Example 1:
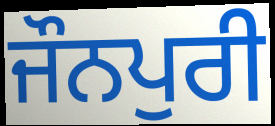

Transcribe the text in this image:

ਜੌਨਪੁਰੀ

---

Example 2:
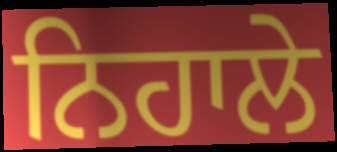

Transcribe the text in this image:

ਨਿਹਾਲੇ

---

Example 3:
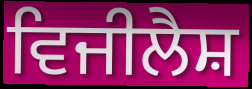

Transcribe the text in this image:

ਵਿਜੀਲੈਸ਼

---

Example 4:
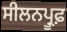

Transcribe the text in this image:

ਸੀਲਨਪ੍ਰੂਫ਼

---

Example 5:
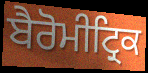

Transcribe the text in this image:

ਬੈਰੋਮੀਟ੍ਰਿਕ